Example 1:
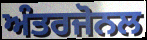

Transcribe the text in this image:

ਅੰਤਰਜੋਨਲ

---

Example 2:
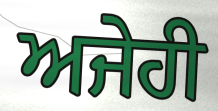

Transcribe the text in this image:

ਅਜੇਹੀ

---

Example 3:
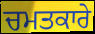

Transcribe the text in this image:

ਚਮਤਕਾਰੇ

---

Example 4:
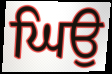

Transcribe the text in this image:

ਘਿਉ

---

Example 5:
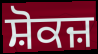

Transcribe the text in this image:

ਸ਼ੋਕਜ਼